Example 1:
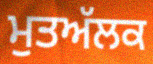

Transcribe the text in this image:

ਮੁਤਅੱਲਕ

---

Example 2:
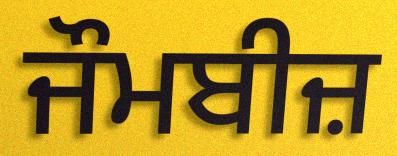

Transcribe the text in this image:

ਜੌਮਬੀਜ਼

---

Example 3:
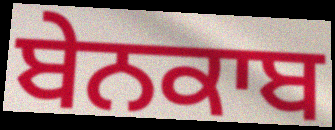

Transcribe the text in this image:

ਬੇਨਕਾਬ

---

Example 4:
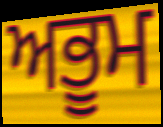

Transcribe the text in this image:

ਅਭੂਮ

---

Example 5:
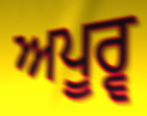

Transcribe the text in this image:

ਅਪੂਰ੍ਵ